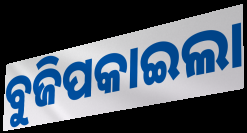
ବୁଜିପକାଇଲା